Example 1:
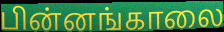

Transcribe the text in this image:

பின்னங்காலை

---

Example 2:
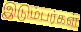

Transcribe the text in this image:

இடும்பர்கள்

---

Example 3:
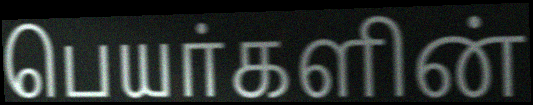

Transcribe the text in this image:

பெயர்களின்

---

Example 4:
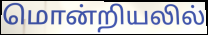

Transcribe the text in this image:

மொன்றியலில்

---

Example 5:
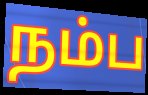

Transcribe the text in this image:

நம்ப